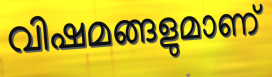
വിഷമങ്ങളുമാണ്